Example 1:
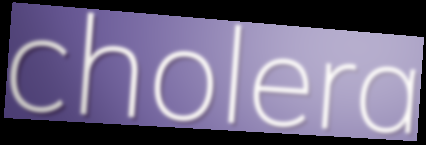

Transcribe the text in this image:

cholera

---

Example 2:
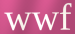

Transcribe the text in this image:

wwf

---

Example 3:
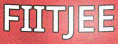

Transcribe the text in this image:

FIITJEE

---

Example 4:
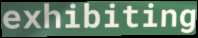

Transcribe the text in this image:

exhibiting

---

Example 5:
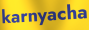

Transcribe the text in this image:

karnyacha